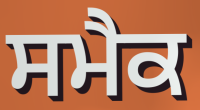
ਸਮੈਕ